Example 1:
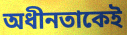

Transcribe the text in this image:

অধীনতাকেই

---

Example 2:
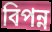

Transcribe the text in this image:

বিপন্ন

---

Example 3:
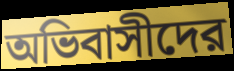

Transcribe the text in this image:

অভিবাসীদের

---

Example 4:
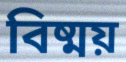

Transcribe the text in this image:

বিষ্ময়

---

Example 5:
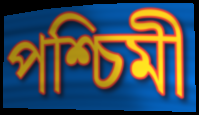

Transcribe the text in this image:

পশ্চিমী